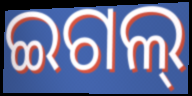
ଇଗଲ୍